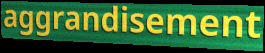
aggrandisement